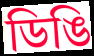
ডিঙি